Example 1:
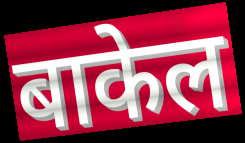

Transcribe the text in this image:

बाकेल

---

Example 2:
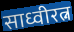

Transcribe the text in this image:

साध्वीरत्न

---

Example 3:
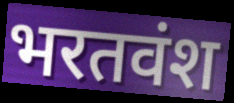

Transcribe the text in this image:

भरतवंश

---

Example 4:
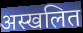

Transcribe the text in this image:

अस्खलित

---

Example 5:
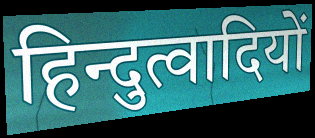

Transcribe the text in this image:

हिन्दुत्वादियों